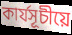
কাৰ্যসূচীয়ে